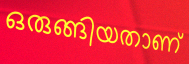
ഒരുങ്ങിയതാണ്